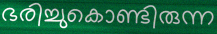
ഭരിച്ചുകൊണ്ടിരുന്ന